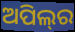
ଅପିଲ୍‍ର